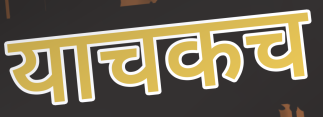
याचकच